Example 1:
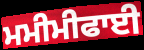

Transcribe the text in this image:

ਮਮੀਮੀਫਾਈ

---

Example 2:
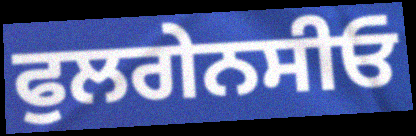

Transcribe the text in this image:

ਫੁਲਗੇਨਸੀਓ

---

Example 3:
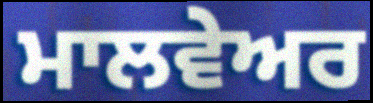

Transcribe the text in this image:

ਮਾਲਵੇਅਰ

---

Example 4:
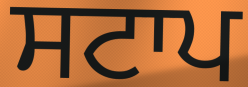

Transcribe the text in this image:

ਸਟਾਪ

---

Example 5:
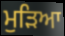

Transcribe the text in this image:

ਮੁੜਿਆ